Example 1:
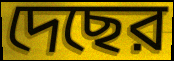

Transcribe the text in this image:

দেছের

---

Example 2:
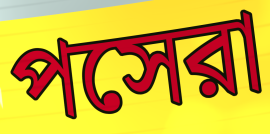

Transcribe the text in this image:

পসেরা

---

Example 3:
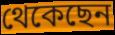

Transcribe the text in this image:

থেকেছেন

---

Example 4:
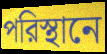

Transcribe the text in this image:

পরিস্থানে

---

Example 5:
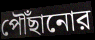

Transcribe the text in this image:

পৌঁছানোর